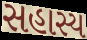
સહાસ્ય